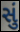
સું